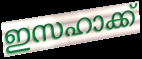
ഇസഹാക്ക്